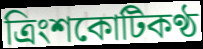
ত্রিংশকোটিকণ্ঠ